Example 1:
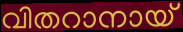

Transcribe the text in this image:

വിതറാനായ്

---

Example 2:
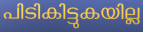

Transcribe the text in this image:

പിടികിട്ടുകയില്ല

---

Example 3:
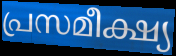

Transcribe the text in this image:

പ്രസമീക്ഷ്യ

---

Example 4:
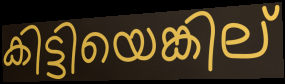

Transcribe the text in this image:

കിട്ടിയെങ്കില്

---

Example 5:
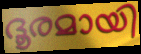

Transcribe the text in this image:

ദൂരമായി